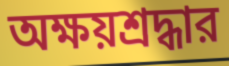
অক্ষয়শ্রদ্ধার